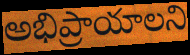
అభిప్రాయాలని